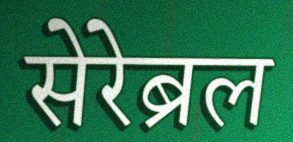
सेरेब्रल